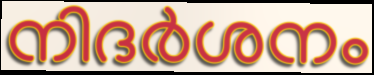
നിദർശനം